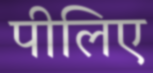
पीलिए